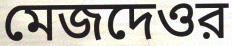
মেজদেওর